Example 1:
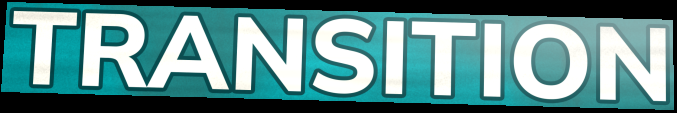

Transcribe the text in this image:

TRANSITION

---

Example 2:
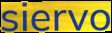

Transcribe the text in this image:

siervo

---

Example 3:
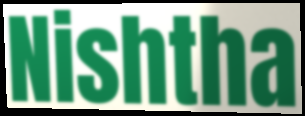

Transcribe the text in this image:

Nishtha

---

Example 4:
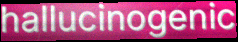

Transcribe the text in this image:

hallucinogenic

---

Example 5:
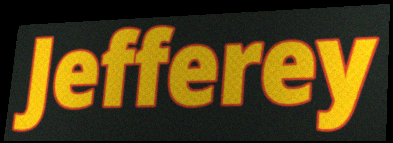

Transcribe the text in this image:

Jefferey